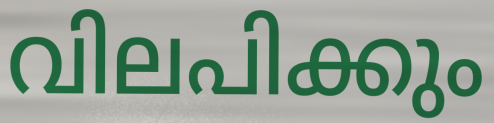
വിലപിക്കും